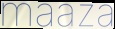
maaza